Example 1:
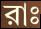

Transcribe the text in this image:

রাঃ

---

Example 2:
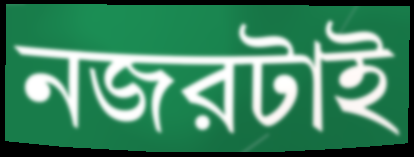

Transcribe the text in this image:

নজরটাই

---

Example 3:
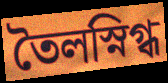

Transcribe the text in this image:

তৈলস্নিগ্ধ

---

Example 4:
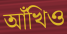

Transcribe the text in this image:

আঁখিও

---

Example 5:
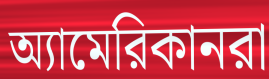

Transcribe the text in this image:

অ্যামেরিকানরা